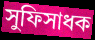
সুফিসাধক